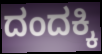
ದಂದಕ್ಕಿ